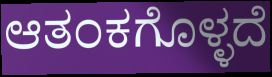
ಆತಂಕಗೊಳ್ಳದೆ